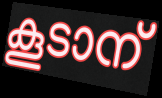
കൂടാന്